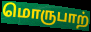
மொருபாற்